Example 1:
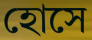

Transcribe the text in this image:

হোসে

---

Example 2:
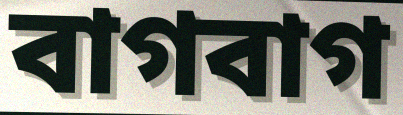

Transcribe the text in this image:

বাগবাগ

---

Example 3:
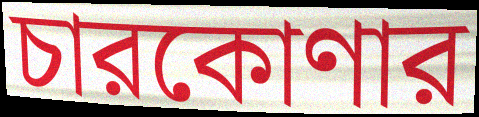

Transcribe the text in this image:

চারকোণার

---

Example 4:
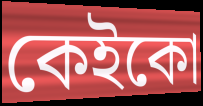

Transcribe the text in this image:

কেইকো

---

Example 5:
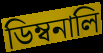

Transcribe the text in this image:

ডিম্বনালি